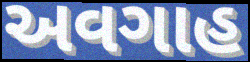
અવગાહ